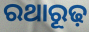
ରଥାରୂଢ଼